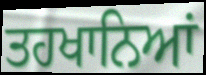
ਤਹਖਾਨਿਆਂ